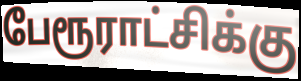
பேரூராட்சிக்கு